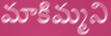
మాకిమ్మని